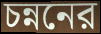
চন্ননের